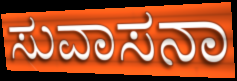
ಸುವಾಸನಾ